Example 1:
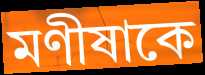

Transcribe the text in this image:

মণীষাকে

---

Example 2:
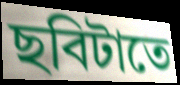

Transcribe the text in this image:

ছবিটাতে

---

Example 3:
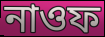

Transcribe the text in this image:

নাওফ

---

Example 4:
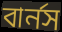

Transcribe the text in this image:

বার্নস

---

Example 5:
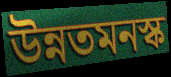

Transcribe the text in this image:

উন্নতমনস্ক